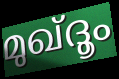
മുഖ്ദൂം